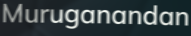
Muruganandan